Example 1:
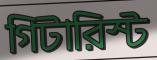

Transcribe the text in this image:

গিটারিস্ট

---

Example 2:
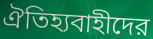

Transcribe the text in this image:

ঐতিহ্যবাহীদের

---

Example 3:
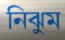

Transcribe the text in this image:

নিঝুম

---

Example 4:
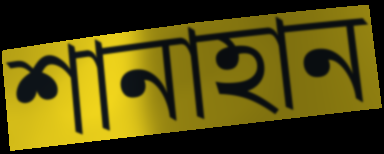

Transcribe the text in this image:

শানাহান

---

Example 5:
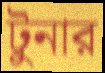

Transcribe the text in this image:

টুনার